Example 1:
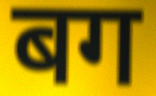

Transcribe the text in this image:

बग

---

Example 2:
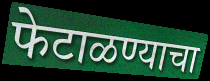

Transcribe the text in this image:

फेटाळण्याचा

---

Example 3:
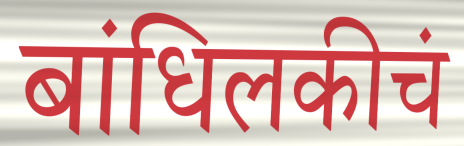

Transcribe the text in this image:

बांधिलकीचं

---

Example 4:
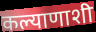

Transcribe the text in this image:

कल्याणाशी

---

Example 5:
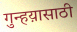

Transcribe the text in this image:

गुन्हय़ासाठी